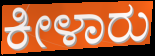
ಕೀಳಾರು